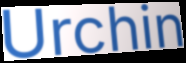
Urchin